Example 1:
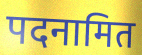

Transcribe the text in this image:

पदनामित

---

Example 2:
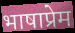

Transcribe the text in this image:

भाषाप्रेम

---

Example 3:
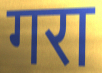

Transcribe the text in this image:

गरा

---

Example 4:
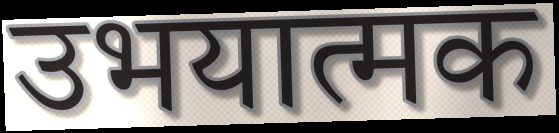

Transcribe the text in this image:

उभयात्मक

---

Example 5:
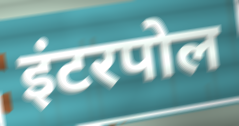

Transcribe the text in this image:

इंटरपोल